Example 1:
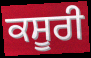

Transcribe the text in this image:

ਕਸੂਰੀ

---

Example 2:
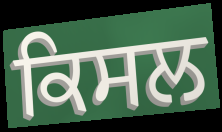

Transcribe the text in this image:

ਕਿਸਲ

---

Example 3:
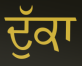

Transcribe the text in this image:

ਦੁੱਕਾ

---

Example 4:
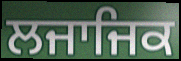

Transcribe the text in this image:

ਲਜਾਜਿਕ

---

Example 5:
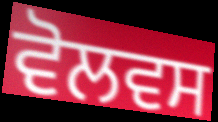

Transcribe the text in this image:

ਵੋਲਵਸ